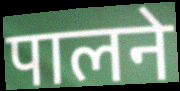
पालने